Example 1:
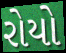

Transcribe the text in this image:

રોયો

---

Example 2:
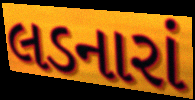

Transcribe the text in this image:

લડનારાં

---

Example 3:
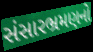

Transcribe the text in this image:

સંસારભ્રમણનો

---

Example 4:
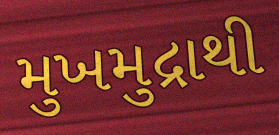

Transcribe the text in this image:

મુખમુદ્રાથી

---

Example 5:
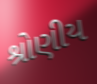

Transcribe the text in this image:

શ્રોણીય